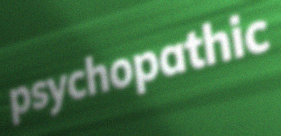
psychopathic